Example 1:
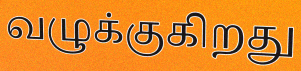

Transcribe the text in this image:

வழுக்குகிறது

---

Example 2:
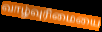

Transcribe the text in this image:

வாழ்வுரிமையை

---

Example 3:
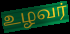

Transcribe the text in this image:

உழவர்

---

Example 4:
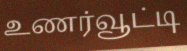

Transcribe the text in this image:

உணர்வூட்டி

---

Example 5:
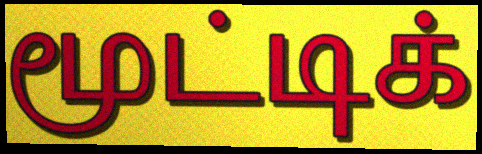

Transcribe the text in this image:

மூட்டிக்